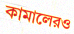
কামালেরও